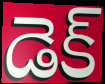
డెక్